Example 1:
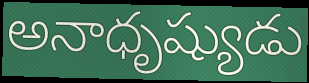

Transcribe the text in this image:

అనాధృష్యుడు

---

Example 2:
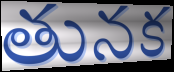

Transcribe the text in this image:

తునక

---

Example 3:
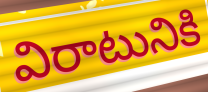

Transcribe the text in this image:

విరాటునికి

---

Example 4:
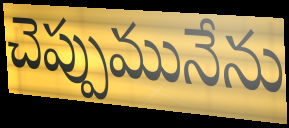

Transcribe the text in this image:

చెప్పుమునేను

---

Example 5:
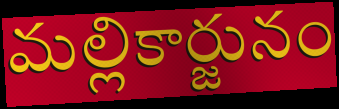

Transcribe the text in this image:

మల్లికార్జునం